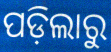
ପଡ଼ିଲାରୁ